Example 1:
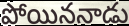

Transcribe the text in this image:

పోయిననాడు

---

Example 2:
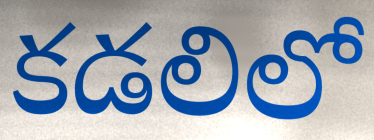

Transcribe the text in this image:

కడలిలో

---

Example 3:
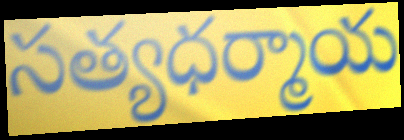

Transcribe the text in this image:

సత్యధర్మాయ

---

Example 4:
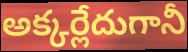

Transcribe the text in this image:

అక్కర్లేదుగానీ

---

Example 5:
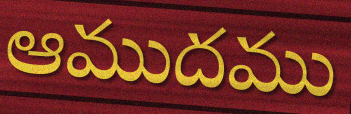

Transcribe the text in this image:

ఆముదము